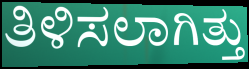
ತಿಳಿಸಲಾಗಿತ್ತು